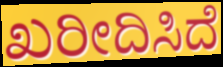
ಖರೀದಿಸಿದೆ